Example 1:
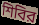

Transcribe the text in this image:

শিবির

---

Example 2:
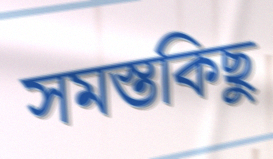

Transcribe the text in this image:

সমস্তকিছু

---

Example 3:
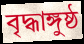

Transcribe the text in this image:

বৃদ্ধাঙ্গুষ্ঠ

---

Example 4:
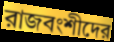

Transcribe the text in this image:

রাজবংশীদের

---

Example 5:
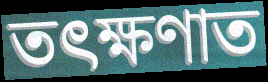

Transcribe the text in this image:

তৎক্ষণাত